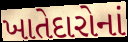
ખાતેદારોનાં